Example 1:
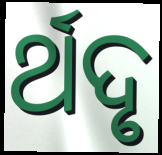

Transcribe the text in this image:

ର୍ଥଦୃ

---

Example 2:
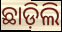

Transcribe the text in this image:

ଛାଡ଼ିଲି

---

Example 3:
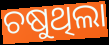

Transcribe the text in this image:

ଚଷୁଥିଲା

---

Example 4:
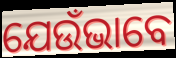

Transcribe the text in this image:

ଯେଉଁଭାବେ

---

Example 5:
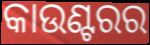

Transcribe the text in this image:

କାଉଣ୍ଟରର